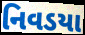
નિવડયા